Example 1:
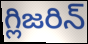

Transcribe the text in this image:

గ్లిజరిన్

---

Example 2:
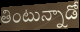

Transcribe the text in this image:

తింటున్నాడో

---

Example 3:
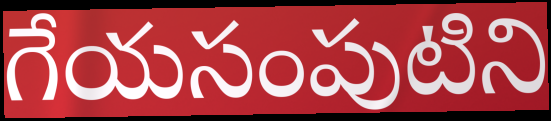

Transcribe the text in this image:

గేయసంపుటిని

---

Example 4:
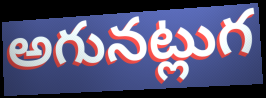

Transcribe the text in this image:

అగునట్లుగ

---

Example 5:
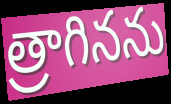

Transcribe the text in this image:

త్రాగినను